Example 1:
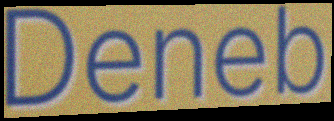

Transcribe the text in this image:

Deneb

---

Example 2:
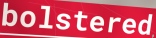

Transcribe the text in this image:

bolstered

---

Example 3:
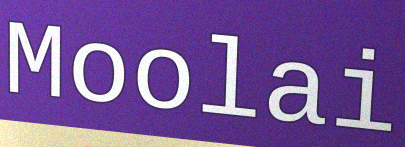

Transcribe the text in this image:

Moolai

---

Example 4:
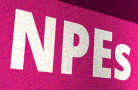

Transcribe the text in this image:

NPEs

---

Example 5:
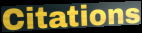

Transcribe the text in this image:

Citations